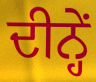
ਦੀਨ੍ਹੇਂ